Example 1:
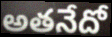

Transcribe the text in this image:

అతనేదో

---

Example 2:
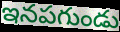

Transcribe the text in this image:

ఇనపగుండు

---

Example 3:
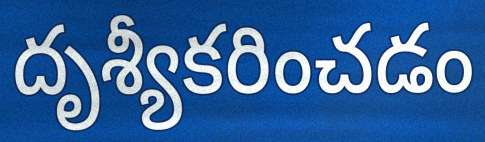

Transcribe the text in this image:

దృశ్యీకరించడం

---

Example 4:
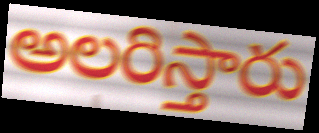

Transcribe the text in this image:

అలరిస్తారు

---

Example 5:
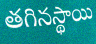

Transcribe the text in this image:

తగినస్థాయి